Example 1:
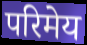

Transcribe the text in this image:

परिमेय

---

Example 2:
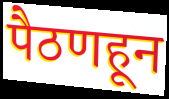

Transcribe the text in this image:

पैठणहून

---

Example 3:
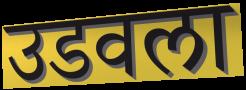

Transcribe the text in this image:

उडवला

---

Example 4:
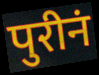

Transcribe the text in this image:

पुरीनं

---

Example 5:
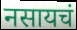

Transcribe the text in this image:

नसायचं